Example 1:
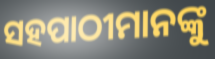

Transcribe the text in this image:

ସହପାଠୀମାନଙ୍କୁ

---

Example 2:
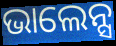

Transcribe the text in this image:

ଭାଲେନ୍ସ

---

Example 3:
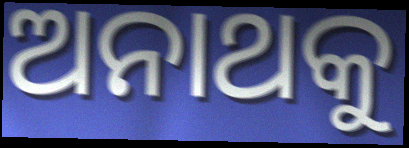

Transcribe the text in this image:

ଅନାଥକୁ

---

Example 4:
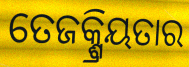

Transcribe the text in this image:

ତେଜକ୍ଶ୍ରିୟତାର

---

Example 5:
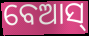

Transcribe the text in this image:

ବେଆସ୍